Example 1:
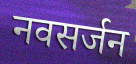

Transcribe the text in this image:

नवसर्जन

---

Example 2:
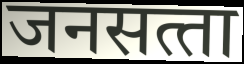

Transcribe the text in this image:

जनसत्‍ता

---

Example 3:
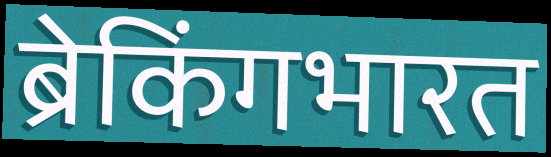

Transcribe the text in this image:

ब्रेकिंगभारत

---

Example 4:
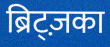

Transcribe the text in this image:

ब्रिट्ज़का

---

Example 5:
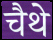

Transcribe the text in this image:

चैथे